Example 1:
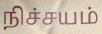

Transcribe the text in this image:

நிச்சயம்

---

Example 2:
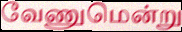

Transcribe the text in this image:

வேணுமென்று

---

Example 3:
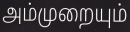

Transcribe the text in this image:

அம்முறையும்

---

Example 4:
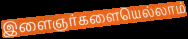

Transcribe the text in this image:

இளைஞர்களையெல்லாம்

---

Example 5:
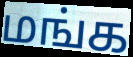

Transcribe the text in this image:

மங்க